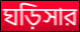
ঘড়িসার